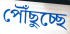
পৌঁছুচ্ছে